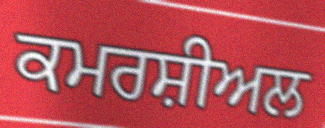
ਕਮਰਸ਼ੀਅਲ